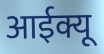
आईक्यू